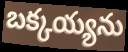
బక్కయ్యను